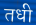
तधी